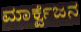
ಮಾರ್ಕ್ವೆಜನ